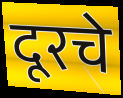
दूरचे